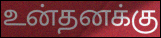
உன்தனக்கு